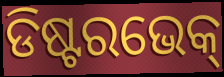
ଡିଷ୍ଟରଭେକ୍